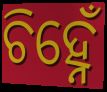
ଚିହ୍ନେଁ